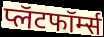
प्लॅटफॉर्म्स